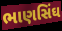
ભાણસિંઘ